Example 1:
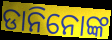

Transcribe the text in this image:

ଡାନିନୋଙ୍କ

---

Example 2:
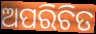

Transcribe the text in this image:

ଅପରିଚିତ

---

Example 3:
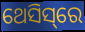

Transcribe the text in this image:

ଥେସିସ୍‌ରେ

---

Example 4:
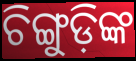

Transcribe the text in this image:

ଚିଙ୍ଗୁଡ଼ିଙ୍କ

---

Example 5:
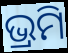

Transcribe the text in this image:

ଭ୍ରମି